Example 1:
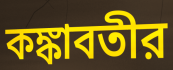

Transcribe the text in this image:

কঙ্কাবতীর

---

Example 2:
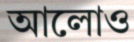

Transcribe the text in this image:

আলোও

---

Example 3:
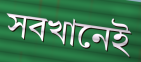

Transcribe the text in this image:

সবখানেই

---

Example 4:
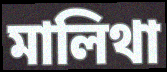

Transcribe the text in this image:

মালিথা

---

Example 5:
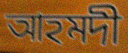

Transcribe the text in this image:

আহমদী